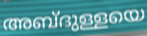
അബ്ദുള്ളയെ